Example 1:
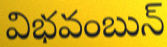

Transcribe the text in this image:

విభవంబున్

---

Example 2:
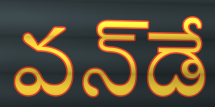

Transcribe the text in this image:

వన్‌డే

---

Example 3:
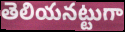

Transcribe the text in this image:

తెలియనట్టుగా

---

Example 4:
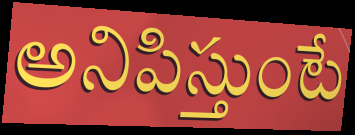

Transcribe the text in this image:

అనిపిస్తుంటే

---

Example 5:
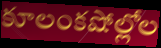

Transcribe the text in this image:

కూలంకషోల్లోల